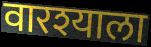
वारश्याला